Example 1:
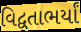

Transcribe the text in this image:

વિદ્વતાભર્યાં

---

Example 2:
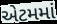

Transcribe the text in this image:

એટમમાં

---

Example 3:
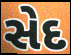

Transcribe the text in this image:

સેદ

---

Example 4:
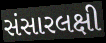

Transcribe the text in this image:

સંસારલક્ષી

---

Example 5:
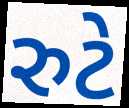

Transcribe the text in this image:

રુટે